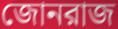
জোনরাজ